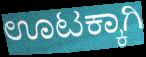
ಊಟಕ್ಕಾಗಿ